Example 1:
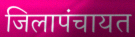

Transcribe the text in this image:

जिलापंचायत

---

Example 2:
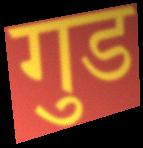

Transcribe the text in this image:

गुड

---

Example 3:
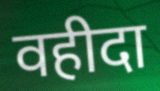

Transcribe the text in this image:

वहीदा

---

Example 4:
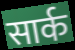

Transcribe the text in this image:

सार्क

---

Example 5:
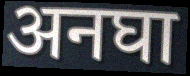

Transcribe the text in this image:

अनघा